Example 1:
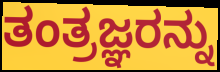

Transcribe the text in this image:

ತಂತ್ರಜ್ಞರನ್ನು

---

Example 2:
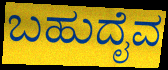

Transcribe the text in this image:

ಬಹುದೈವ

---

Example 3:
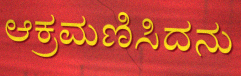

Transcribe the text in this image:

ಆಕ್ರಮಣಿಸಿದನು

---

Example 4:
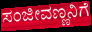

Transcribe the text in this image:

ಸಂಜೀವಣ್ಣನಿಗೆ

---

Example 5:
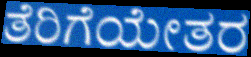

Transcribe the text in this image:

ತೆರಿಗೆಯೇತರ